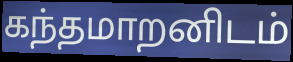
கந்தமாறனிடம்